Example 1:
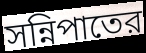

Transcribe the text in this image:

সন্নিপাতের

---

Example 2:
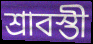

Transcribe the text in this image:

শ্রাবস্তী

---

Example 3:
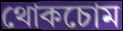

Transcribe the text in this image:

থোকচোম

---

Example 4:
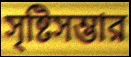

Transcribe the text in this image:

সৃষ্টিসম্ভার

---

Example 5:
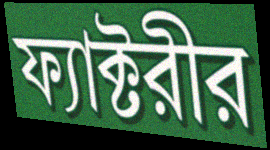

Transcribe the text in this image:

ফ্যাক্টরীর